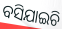
ବସିଯାଇଚି